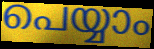
പെയ്യാം